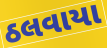
ઠલવાયા